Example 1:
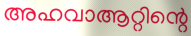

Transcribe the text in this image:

അഹവാആറ്റിന്റെ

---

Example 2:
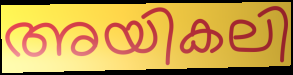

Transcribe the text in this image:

അയികലി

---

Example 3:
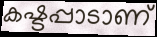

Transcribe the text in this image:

കഷ്ടപ്പാടാണ്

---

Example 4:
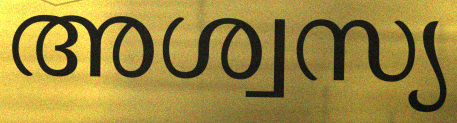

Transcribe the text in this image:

അശ്വസ്യ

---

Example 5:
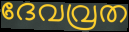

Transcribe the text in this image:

ദേവവ്രത